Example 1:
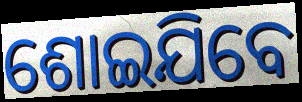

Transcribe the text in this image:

ଶୋଇଯିବେ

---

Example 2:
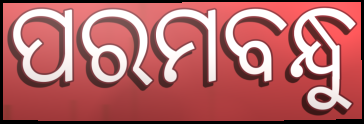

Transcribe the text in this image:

ପରମବନ୍ଧୁ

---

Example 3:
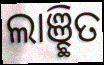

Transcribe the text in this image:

ଲାଞ୍ଛିତ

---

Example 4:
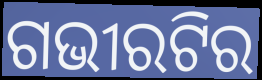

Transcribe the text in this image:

ଗଭୀରଟିର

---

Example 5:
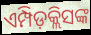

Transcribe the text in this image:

ଏମ୍ପିଡ଼କ୍ଲିସଙ୍କ